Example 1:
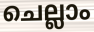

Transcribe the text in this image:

ചെല്ലാം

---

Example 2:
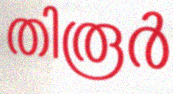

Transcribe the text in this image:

തിരൂർ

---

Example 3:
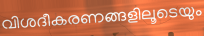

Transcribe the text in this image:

വിശദീകരണങ്ങളിലൂടെയും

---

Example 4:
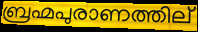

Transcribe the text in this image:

ബ്രഹ്മപുരാണത്തില്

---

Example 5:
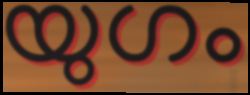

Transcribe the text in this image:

യുഗം